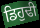
ਡਿਹੁਢੀ